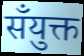
सँयुक्त